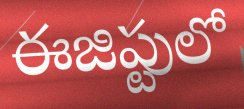
ఈజిప్టులో